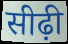
सीढ़ी